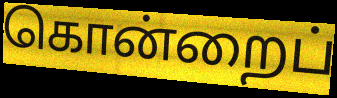
கொன்றைப்